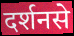
दर्शनसे